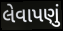
લેવાપણું